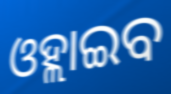
ଓହ୍ଲାଇବ